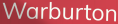
Warburton